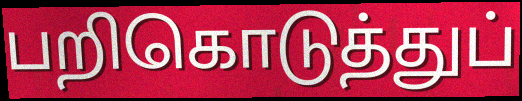
பறிகொடுத்துப்